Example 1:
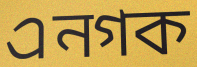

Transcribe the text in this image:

এনগক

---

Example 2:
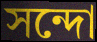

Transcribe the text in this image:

সন্দো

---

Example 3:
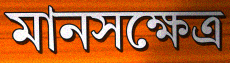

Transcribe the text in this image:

মানসক্ষেত্র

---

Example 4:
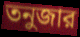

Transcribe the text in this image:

তনুজার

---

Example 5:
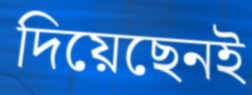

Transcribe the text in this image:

দিয়েছেনই